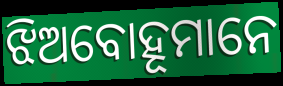
ଝିଅବୋହୂମାନେ